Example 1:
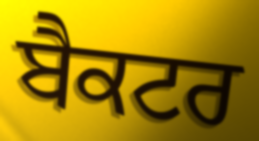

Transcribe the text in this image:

ਬੈਕਟਰ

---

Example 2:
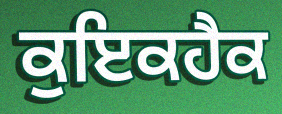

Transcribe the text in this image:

ਕੁਇਕਹੈਕ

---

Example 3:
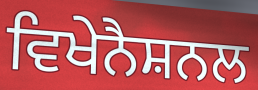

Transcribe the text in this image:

ਵਿਖੇਨੈਸ਼ਨਲ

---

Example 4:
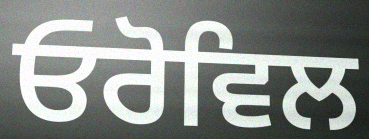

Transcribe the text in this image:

ਓਰੋਵਿਲ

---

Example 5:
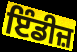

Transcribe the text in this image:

ਇੰਡੀਜ਼